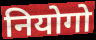
नियोगो